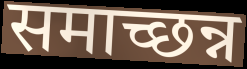
समाच्छन्न